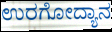
ಉರಗೋದ್ಯಾನ